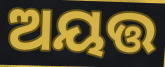
ଅୟତ୍ତ